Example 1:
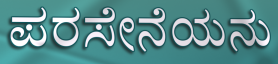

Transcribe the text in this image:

ಪರಸೇನೆಯನು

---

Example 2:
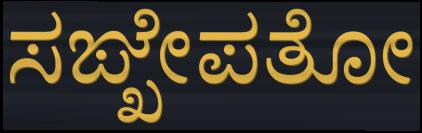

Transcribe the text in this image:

ಸಙ್ಖೇಪತೋ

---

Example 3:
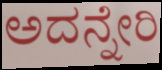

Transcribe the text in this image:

ಅದನ್ನೇರಿ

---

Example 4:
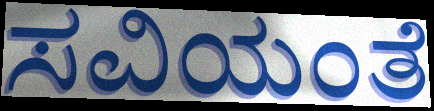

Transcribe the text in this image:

ಸವಿಯಂತೆ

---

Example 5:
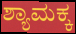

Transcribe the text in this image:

ಶ್ಯಾಮಕ್ಕ